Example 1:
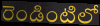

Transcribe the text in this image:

రెండింటిలో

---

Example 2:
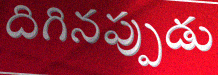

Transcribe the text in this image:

దిగినప్పుడు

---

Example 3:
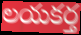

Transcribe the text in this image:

లయకర్త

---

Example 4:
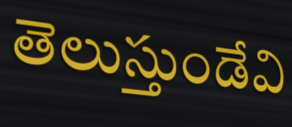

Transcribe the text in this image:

తెలుస్తుండేవి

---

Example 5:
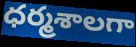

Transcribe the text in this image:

ధర్మశాలగా